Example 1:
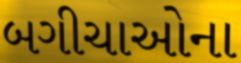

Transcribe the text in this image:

બગીચાઓના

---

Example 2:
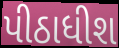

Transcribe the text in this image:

પીઠાધીશ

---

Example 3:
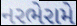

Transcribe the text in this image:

નરભેરામે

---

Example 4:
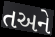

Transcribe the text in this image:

તઅને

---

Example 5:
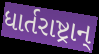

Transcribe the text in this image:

ધાર્તરાષ્ટ્રાન્